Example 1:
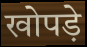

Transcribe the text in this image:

खोपड़े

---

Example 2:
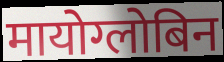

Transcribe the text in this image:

मायोग्लोबिन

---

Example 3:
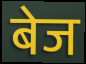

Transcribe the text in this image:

बेज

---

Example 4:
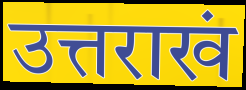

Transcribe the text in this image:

उत्तराखं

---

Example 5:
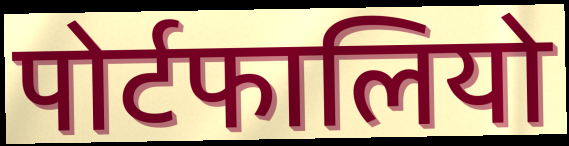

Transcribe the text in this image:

पोर्टफालियो